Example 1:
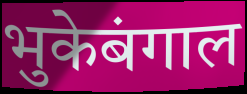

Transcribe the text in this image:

भुकेबंगाल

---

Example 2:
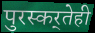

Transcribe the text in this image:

पुरस्कर्तेही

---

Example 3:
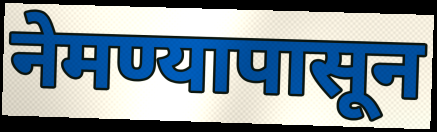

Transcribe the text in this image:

नेमण्यापासून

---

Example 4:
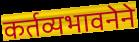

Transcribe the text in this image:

कर्तव्यभावनेने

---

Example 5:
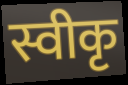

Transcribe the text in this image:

स्वीकृ